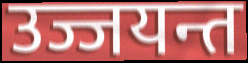
उज्जयन्त